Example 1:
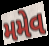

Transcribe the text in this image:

મમેવ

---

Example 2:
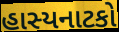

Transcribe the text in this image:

હાસ્યનાટકો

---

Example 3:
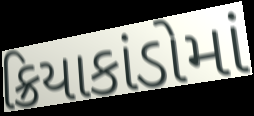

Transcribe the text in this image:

ક્રિયાકાંડોમાં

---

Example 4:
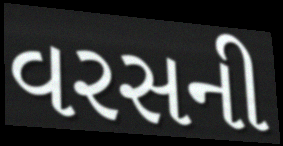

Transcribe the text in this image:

વરસની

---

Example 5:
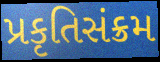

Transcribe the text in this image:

પ્રકૃતિસંક્રમ